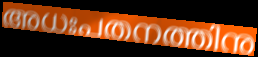
അധഃപതനത്തിനു